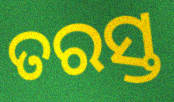
ତରସ୍ତ